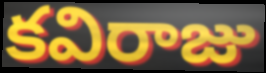
కవిరాజు